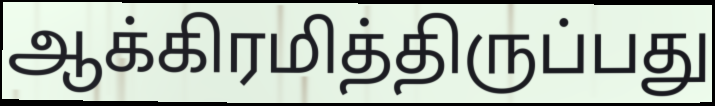
ஆக்கிரமித்திருப்பது